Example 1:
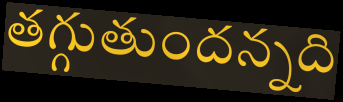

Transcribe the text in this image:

తగ్గుతుందన్నది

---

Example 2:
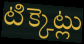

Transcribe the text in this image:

టిక్కెట్లు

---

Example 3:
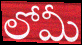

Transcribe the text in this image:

లోమీ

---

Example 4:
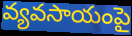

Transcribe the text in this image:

వ్యవసాయంపై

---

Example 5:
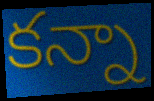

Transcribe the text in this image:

కన్నా